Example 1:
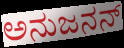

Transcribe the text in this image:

ಅನುಜನನ್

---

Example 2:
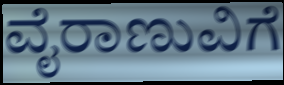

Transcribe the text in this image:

ವೈರಾಣುವಿಗೆ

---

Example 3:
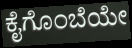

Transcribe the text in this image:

ಕೈಗೊಂಬೆಯೇ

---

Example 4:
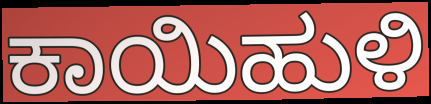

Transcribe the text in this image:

ಕಾಯಿಹುಳಿ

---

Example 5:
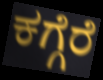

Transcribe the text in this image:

ಕಗ್ಗೆರೆ